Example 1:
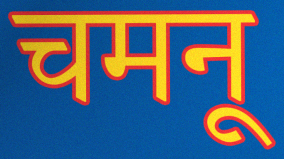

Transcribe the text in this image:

चमनू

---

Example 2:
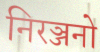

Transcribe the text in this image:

निरञ्जनो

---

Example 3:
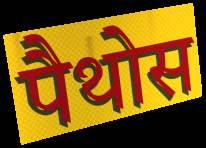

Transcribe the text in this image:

पैथोस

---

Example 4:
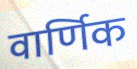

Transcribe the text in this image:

वार्णिक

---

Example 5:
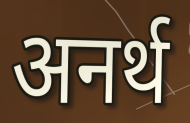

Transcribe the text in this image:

अनर्थ